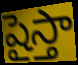
షైస్తా